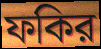
ফকির